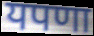
यपणा